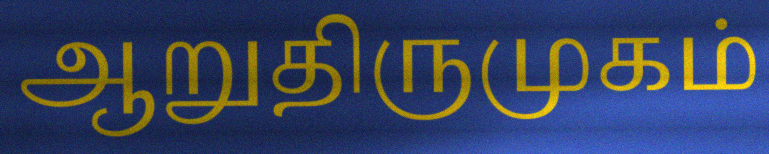
ஆறுதிருமுகம்